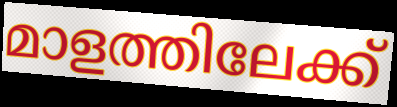
മാളത്തിലേക്ക്